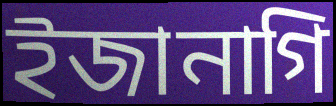
ইজানাগি